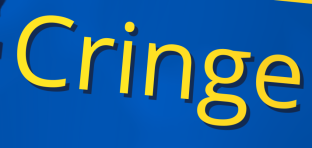
Cringe